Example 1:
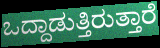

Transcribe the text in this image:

ಒದ್ದಾಡುತ್ತಿರುತ್ತಾರೆ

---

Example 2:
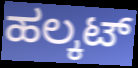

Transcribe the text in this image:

ಹಲ್ಕಟ್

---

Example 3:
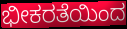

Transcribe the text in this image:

ಭೀಕರತೆಯಿಂದ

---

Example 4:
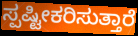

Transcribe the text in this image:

ಸ್ಪಷ್ಟೀಕರಿಸುತ್ತಾರೆ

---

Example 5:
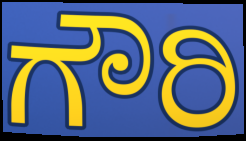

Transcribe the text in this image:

ಗೌರಿ